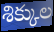
శిక్కుల